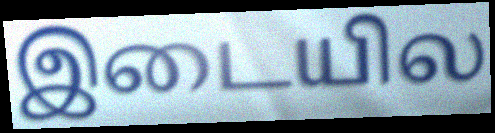
இடையில